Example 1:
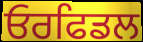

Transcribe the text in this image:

ਓਰਫਿਡਲ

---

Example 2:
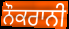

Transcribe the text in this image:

ਨੌਕਰਾਨੀ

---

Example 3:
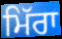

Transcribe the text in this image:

ਮਿੱਰਾ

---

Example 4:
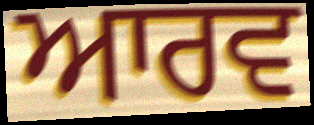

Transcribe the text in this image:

ਆਰਵ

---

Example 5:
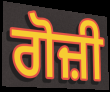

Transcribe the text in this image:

ਗੋਜ਼ੀ